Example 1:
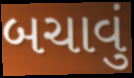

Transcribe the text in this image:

બચાવું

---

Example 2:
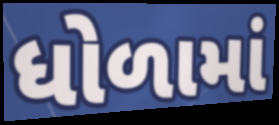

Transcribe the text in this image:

ધોળામાં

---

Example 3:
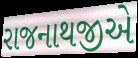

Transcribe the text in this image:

રાજનાથજીએ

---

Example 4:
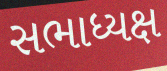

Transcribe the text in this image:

સભાધ્યક્ષ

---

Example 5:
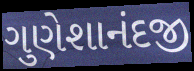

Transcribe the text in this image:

ગુણેશાનંદજી